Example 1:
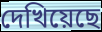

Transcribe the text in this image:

দেখিয়েছে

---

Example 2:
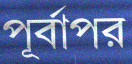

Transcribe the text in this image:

পূর্বাপর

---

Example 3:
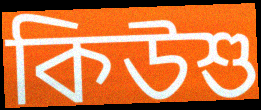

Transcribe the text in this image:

কিউশু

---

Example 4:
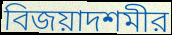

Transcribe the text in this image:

বিজয়াদশমীর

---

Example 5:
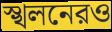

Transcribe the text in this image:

স্খলনেরও